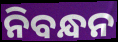
ନିବନ୍ଧନ